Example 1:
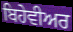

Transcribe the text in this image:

ਬਿਹੇਵੀਅਰ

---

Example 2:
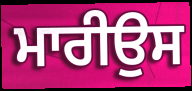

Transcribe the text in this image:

ਮਾਰੀਉਸ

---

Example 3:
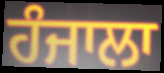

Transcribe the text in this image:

ਹੰਜਾਲਾ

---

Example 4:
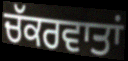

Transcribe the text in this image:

ਚੱਕਰਵਾਤਾਂ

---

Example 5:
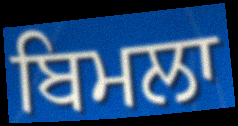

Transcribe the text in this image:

ਬਿਮਲਾ